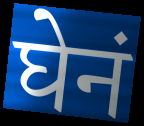
घेनं